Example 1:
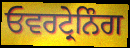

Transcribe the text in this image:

ਓਵਰਟ੍ਰੇਨਿੰਗ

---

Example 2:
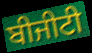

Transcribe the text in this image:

ਬੀਜੀਟੀ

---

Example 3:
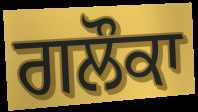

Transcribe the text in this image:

ਗਲੌਕਾ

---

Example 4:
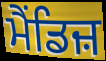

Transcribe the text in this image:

ਮੈਂਡਿਜ਼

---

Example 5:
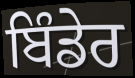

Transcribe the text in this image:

ਬਿੰਡੇਰ